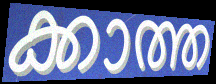
ക്കാത്ത